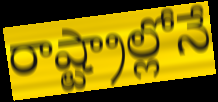
రాష్ట్రాల్లోనే